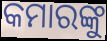
କମାରଙ୍କୁ